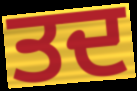
ਤਦ